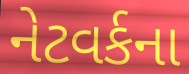
નેટવર્કના